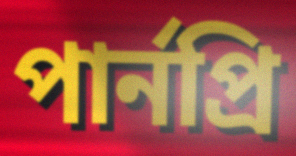
পার্নপ্রি